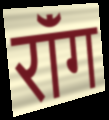
रॉंग